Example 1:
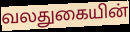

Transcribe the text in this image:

வலதுகையின்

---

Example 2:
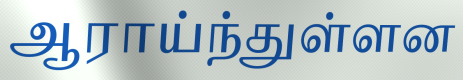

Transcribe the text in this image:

ஆராய்ந்துள்ளன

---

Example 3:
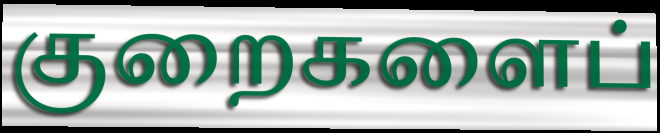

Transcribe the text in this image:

குறைகளைப்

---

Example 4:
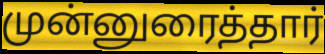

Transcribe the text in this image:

முன்னுரைத்தார்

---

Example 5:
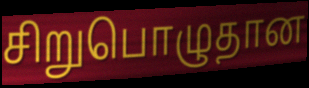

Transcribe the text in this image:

சிறுபொழுதான